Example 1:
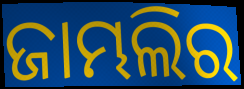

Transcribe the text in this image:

ଜାମ୍ଭଲିର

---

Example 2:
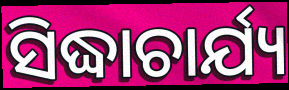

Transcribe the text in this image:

ସିଦ୍ଧାଚାର୍ଯ୍ୟ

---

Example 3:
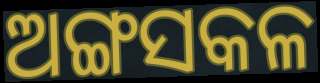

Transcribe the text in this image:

ଅଙ୍ଗସକଳ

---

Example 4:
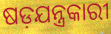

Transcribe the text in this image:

ଷଡ଼ଯନ୍ତ୍ରକାରୀ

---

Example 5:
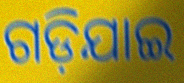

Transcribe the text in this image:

ଗଡ଼ିଯାଇ